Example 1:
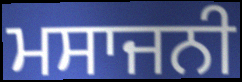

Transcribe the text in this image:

ਮਸਾਜਨੀ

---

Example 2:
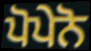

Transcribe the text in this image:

ਪੋਪੇਨੋ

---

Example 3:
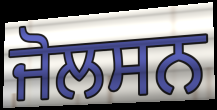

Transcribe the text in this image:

ਜੋਲਸਨ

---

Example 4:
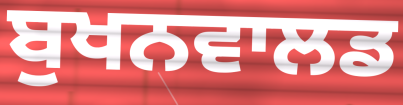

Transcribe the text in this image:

ਬੁਖਨਵਾਲਡ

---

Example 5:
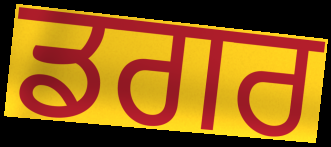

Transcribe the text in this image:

ਡਗਰ